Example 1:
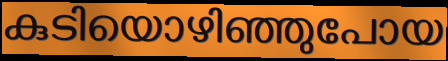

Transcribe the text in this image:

കുടിയൊഴിഞ്ഞുപോയ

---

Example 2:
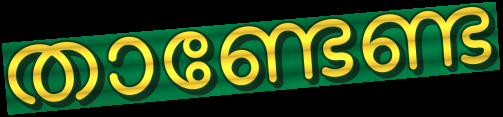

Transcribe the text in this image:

താണ്ടേണ്ട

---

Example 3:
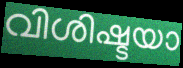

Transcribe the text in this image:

വിശിഷ്ടയാ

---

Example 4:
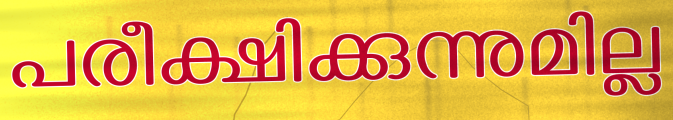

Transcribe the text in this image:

പരീക്ഷിക്കുന്നുമില്ല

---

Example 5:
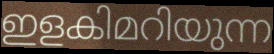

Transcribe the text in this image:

ഇളകിമറിയുന്ന